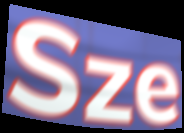
Sze